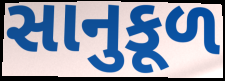
સાનુકૂળ